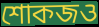
শোকজও